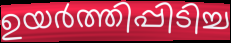
ഉയർത്തിപ്പിടിച്ച